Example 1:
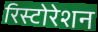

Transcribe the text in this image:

रिस्टोरेशन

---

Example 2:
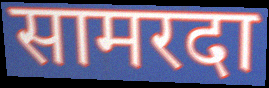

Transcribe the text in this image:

सामरदा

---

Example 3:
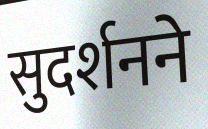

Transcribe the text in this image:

सुदर्शनने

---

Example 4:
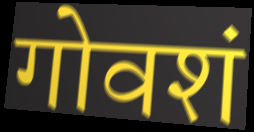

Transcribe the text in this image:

गोवशं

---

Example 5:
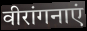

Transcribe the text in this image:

वीरांगनाएं